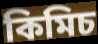
কিমিচ